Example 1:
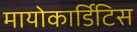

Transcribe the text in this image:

मायोकार्डिटिस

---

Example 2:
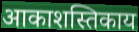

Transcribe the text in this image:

आकाशस्तिकाय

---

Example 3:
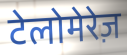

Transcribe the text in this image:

टेलोमेरेज़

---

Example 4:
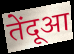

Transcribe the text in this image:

तेंदूआ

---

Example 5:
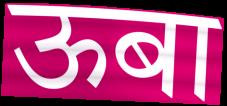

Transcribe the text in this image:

ऊबा